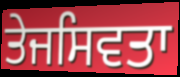
ਤੇਜਸਿਵਤਾ